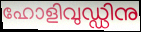
ഹോളിവുഡ്ഡിനു